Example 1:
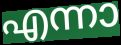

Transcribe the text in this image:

എന്നാ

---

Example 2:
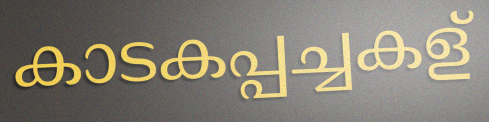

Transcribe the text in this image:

കാടകപ്പച്ചകള്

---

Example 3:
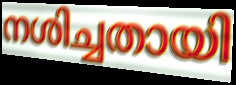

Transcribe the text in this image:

നശിച്ചതായി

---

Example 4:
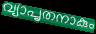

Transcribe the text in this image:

വ്യാപൃതനാകും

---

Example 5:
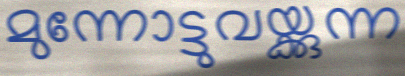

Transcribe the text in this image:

മുന്നോട്ടുവയ്ക്കുന്ന